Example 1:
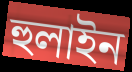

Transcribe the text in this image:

হুলাইন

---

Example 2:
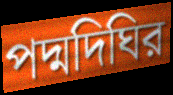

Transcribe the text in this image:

পদ্মদিঘির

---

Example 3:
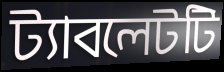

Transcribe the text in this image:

ট্যাবলেটটি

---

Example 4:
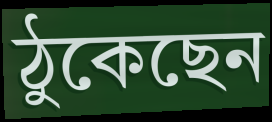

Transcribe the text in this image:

ঠুকেছেন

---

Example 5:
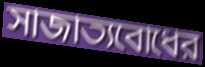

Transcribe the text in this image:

সাজাত্যবোধের